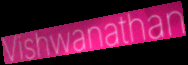
Vishwanathan